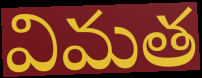
విమత